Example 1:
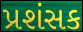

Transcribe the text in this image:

પ્રશંસક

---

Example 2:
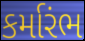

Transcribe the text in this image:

કર્મારંભ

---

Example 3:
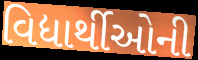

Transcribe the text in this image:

વિદ્યાર્થીઓની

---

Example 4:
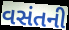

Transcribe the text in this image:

વસંતની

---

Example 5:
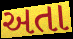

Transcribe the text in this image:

અતા